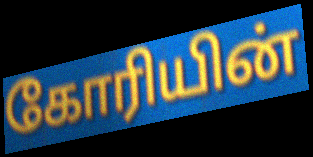
கோரியின்